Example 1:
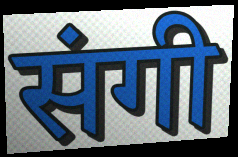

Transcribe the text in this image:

संगी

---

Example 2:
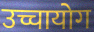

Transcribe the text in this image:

उच्चायोग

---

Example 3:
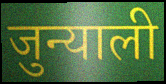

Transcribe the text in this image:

जुन्याली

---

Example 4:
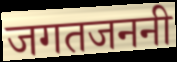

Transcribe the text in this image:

जगतजननी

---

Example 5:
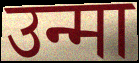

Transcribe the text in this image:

उन्मा